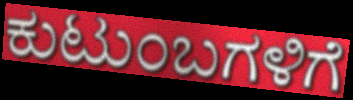
ಕುಟುಂಬಗಳಿಗೆ